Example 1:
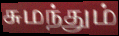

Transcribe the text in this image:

சுமந்தும்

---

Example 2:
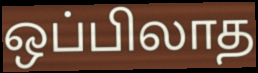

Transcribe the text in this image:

ஒப்பிலாத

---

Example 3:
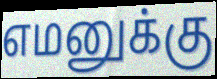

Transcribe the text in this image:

எமனுக்கு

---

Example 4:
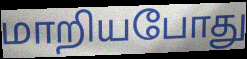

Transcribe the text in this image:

மாறியபோது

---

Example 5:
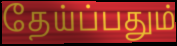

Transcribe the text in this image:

தேய்ப்பதும்